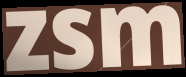
zsm